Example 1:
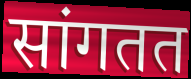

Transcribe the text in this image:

सांगतत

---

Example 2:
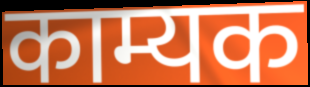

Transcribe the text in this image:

काम्यक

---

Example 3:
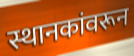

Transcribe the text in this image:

स्थानकांवरून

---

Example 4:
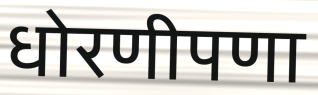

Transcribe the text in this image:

धोरणीपणा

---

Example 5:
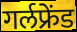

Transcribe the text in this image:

गर्लफ्रेंड